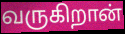
வருகிறான்